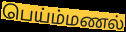
பெய்ம்மணல்